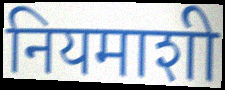
नियमाशी